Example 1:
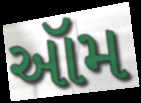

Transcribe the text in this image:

ઑમ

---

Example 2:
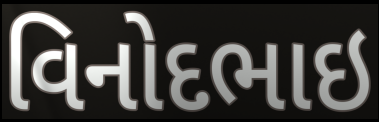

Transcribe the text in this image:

વિનોદભાઇ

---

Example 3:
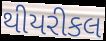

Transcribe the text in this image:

થીયરીકલ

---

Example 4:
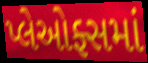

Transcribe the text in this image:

પ્લેઓફ્સમાં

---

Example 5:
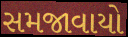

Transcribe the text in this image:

સમજાવાયો